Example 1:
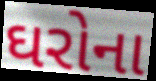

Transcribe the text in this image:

ઘરોના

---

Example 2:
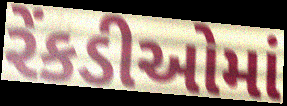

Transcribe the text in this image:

રેંકડીઓમાં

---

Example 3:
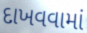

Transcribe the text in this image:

દાખવવામાં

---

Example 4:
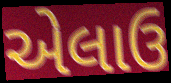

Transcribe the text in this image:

એલાઉ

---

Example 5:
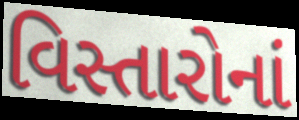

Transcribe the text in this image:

વિસ્તારોનાં